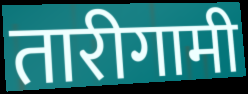
तारीगामी